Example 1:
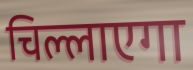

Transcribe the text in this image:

चिल्लाएगा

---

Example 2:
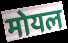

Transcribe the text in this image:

मोयल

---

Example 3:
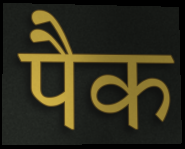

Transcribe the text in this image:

पैक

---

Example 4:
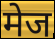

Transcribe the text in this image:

मेज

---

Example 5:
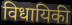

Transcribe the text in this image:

विधायिकी